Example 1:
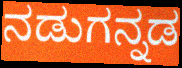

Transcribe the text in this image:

ನಡುಗನ್ನಡ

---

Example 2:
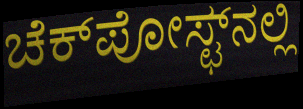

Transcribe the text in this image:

ಚೆಕ್‌ಪೋಸ್ಟ್‌ನಲ್ಲಿ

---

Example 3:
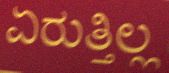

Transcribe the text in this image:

ಏರುತ್ತಿಲ್ಲ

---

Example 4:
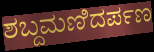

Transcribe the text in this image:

ಶಬ್ದಮಣಿದರ್ಪಣ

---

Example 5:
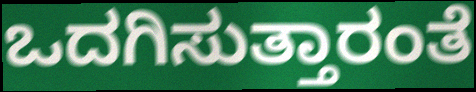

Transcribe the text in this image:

ಒದಗಿಸುತ್ತಾರಂತೆ